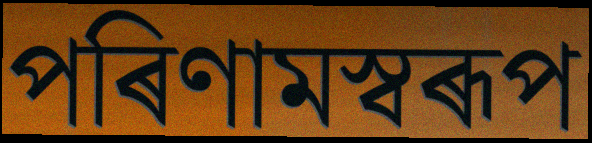
পৰিণামস্বৰূপ